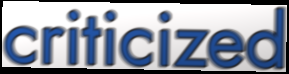
criticized